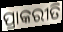
ପ୍ରାକରୀତି